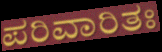
ಪರಿವಾರಿತಃ